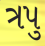
ત્રપુ